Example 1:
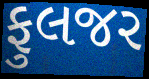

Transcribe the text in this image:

ફુલજર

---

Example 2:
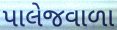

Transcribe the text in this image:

પાલેજવાળા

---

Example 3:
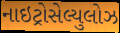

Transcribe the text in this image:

નાઇટ્રોસેલ્યુલોઝ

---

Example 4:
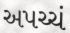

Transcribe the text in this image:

અપચ્ચં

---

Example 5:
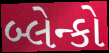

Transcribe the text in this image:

બ્લેન્કો